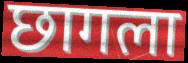
छागला